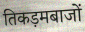
तिकड़मबाजों